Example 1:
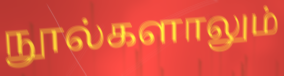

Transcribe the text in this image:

நூல்களாலும்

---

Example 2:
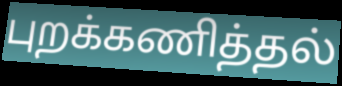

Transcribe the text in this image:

புறக்கணித்தல்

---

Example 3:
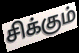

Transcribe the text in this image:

சிக்கும்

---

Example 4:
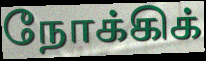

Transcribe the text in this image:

நோக்கிக்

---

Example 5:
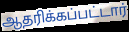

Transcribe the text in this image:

ஆதரிக்கப்பட்டார்